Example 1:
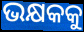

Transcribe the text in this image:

ଭକ୍ଷକକୁ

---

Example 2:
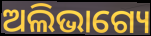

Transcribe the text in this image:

ଅଲିଭାଗ୍ୟେ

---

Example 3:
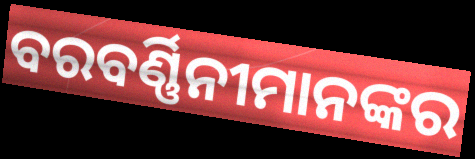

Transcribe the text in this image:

ବରବର୍ଣ୍ଣିନୀମାନଙ୍କର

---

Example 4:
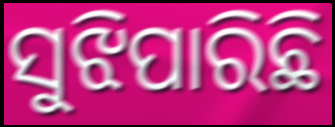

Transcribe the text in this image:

ସୁଝିପାରିଛି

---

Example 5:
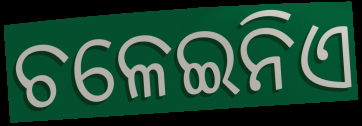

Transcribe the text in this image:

ଚଳେଇନିଏ